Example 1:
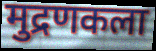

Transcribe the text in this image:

मुद्रणकला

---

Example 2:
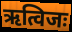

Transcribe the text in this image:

ऋत्विजः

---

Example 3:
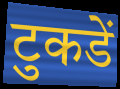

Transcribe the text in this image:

टुकडें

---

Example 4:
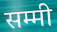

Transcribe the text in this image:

सम्मी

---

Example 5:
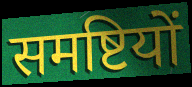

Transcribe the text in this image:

समष्टियों